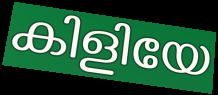
കിളിയേ